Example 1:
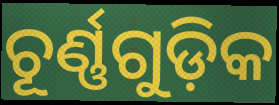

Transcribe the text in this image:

ଚୂର୍ଣ୍ଣଗୁଡ଼ିକ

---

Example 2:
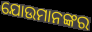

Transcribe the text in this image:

ଯୋଉମାନଙ୍କର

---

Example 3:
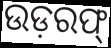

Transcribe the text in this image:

ଉଡ଼ରଫ୍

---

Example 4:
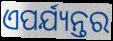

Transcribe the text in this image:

ଏପର୍ଯ୍ୟନ୍ତର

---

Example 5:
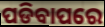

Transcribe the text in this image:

ପଡିବାପରେ